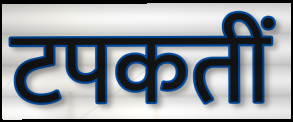
टपकतीं